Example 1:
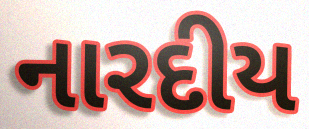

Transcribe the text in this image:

નારદીય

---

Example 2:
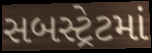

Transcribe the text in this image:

સબસ્ટ્રેટમાં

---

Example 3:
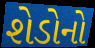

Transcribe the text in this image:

શેડોનો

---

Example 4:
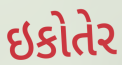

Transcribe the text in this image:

ઇકોતેર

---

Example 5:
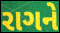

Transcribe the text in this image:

રાગને